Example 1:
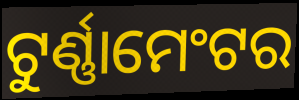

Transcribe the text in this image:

ଟୁର୍ଣ୍ଣାମେଂଟର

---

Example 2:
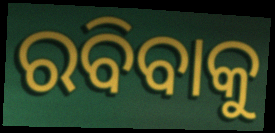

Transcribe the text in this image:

ରବିବାକୁ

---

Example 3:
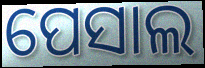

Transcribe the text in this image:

ପେସାଲ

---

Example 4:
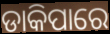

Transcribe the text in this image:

ଡାକିପାରେ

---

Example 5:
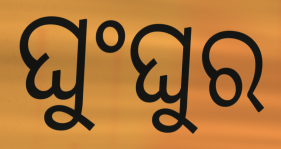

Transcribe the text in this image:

ଘୁଂଘୁର